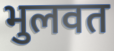
भुलवत